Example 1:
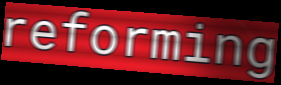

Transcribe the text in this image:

reforming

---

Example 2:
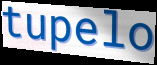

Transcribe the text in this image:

tupelo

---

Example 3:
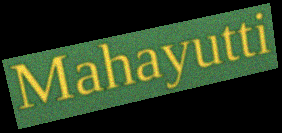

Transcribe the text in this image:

Mahayutti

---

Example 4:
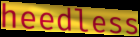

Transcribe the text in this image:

heedless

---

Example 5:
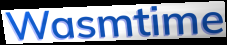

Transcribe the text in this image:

Wasmtime